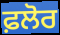
ਫ਼ਲੋਰ